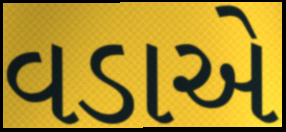
વડાએ